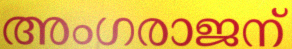
അംഗരാജന്